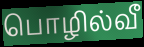
பொழில்வீ